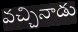
వచ్చినాడు